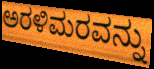
ಅರಳಿಮರವನ್ನು